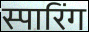
स्पारिंग